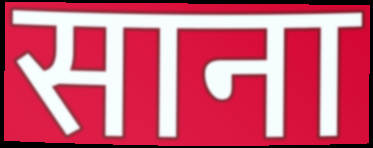
साना